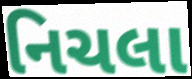
નિચલા